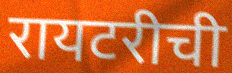
रायटरीची